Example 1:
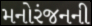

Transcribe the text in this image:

મનોરંજનની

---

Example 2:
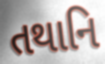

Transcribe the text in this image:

તથાનિ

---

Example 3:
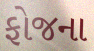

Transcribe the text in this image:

ફોજના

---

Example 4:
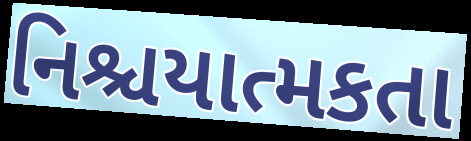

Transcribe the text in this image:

નિશ્ચયાત્મકતા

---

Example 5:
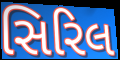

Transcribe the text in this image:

સિરિલ